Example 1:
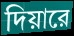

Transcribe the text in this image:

দিয়ারে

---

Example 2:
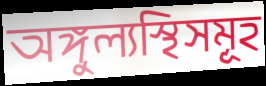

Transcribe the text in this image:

অঙ্গুল্যস্থিসমূহ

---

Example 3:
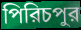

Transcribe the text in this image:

পিরিচপুর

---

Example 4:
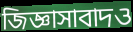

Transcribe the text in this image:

জিজ্ঞাসাবাদও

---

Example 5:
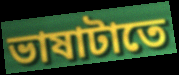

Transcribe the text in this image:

ভাষাটাতে